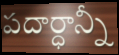
పదార్ధాన్నీ